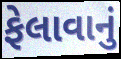
ફેલાવાનું